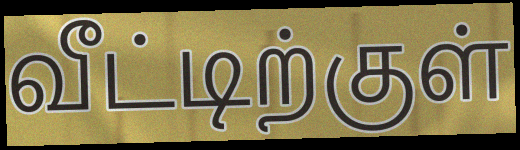
வீட்டிற்குள்